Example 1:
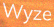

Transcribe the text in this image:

Wyze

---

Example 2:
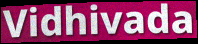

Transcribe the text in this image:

Vidhivada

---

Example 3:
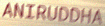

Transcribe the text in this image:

ANIRUDDHA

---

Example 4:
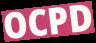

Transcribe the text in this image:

OCPD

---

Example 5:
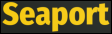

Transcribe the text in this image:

Seaport